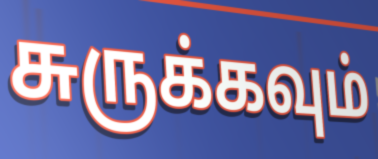
சுருக்கவும்